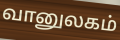
வானுலகம்